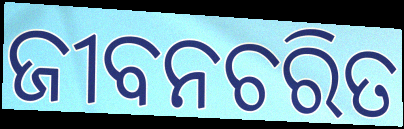
ଜୀବନଚରିତ